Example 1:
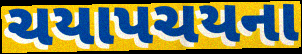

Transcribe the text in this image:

ચયાપચયના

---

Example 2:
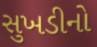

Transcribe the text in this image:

સુખડીનો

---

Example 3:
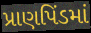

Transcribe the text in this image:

પ્રાણપિંડમાં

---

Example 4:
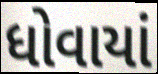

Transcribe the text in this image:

ધોવાયાં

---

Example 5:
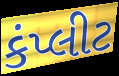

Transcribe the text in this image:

કંપ્લીટ